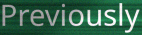
Previously